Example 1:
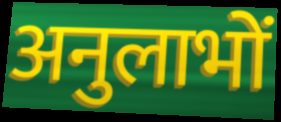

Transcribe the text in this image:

अनुलाभों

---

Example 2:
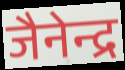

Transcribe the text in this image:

जैनेन्द्र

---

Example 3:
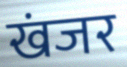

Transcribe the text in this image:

खंजर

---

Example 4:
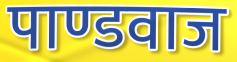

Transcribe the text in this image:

पाण्डवाज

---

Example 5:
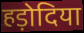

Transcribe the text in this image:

हड़ोदिया